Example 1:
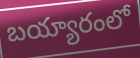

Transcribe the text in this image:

బయ్యారంలో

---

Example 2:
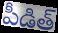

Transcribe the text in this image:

పీడిత్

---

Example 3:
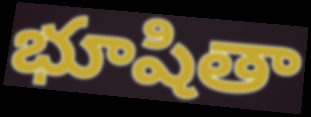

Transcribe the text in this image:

భూషితా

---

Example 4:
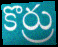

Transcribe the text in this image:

కొర్రు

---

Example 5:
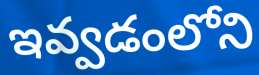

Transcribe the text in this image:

ఇవ్వడంలోని